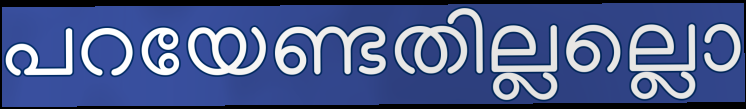
പറയേണ്ടതില്ലല്ലൊ